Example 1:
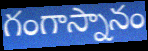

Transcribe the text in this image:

గంగాస్నానం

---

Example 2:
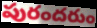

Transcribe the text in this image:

పురందరుం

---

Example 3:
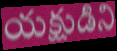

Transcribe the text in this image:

యక్షుడిని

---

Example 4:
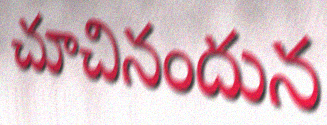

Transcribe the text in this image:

చూచినందున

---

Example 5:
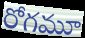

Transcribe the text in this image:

రోగమూ